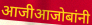
आजीआजोबांनी